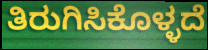
ತಿರುಗಿಸಿಕೊಳ್ಳದೆ